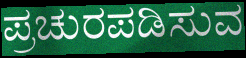
ಪ್ರಚುರಪಡಿಸುವ